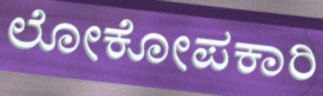
ಲೋಕೋಪಕಾರಿ